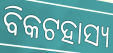
ବିକଟହାସ୍ୟ